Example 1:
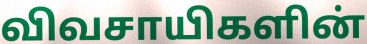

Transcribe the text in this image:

விவசாயிகளின்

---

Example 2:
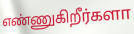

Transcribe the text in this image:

எண்ணுகிறீர்களா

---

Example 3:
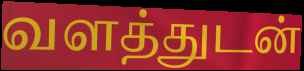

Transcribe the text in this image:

வளத்துடன்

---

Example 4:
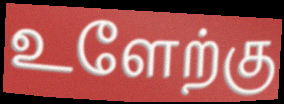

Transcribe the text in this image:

உளேற்கு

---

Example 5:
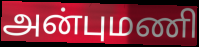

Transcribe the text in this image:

அன்புமணி